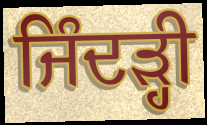
ਜਿੰਦੜ੍ਹੀ